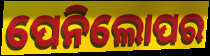
ପେନିଲୋପର